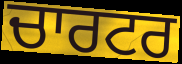
ਚਾਰਟਰ